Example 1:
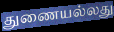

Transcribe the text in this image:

துணையல்லது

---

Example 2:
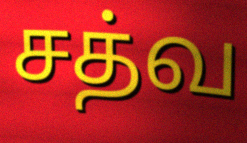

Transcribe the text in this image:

சத்வ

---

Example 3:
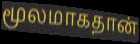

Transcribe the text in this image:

மூலமாகதான்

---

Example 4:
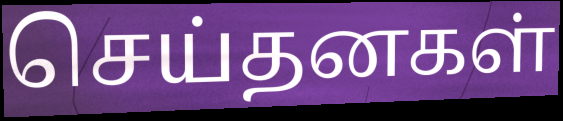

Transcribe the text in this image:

செய்தனகள்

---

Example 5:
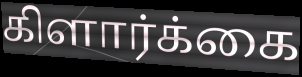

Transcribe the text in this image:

கிளார்க்கை